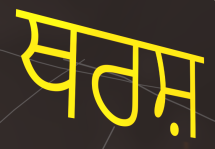
ਥਰਸ਼